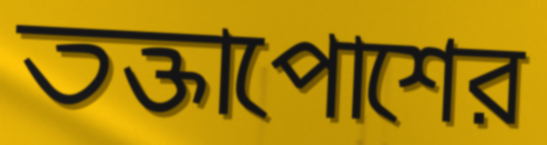
তক্তাপোশের